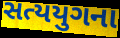
સત્યયુગના